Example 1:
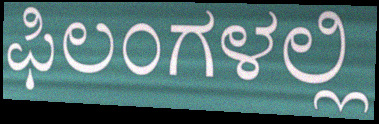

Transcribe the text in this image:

ಫಿಲಂಗಳಲ್ಲಿ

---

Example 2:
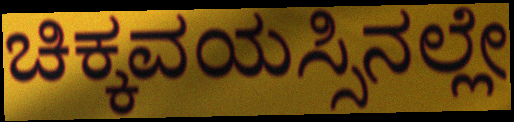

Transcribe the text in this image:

ಚಿಕ್ಕವಯಸ್ಸಿನಲ್ಲೇ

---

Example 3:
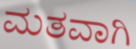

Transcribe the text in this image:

ಮತವಾಗಿ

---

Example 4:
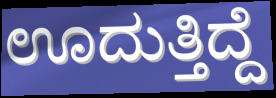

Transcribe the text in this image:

ಊದುತ್ತಿದ್ದೆ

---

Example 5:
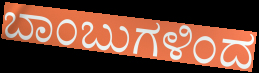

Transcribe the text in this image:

ಬಾಂಬುಗಳಿಂದ